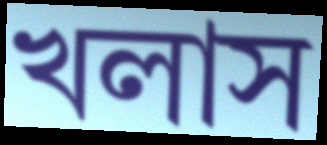
খলাস